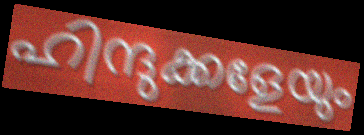
ഹിന്ദുക്കളേയും